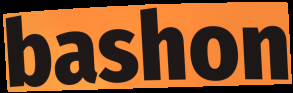
bashon